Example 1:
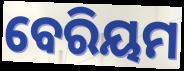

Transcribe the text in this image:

ବେରିୟମ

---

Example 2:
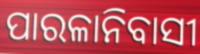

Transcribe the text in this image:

ପାରଳାନିବାସୀ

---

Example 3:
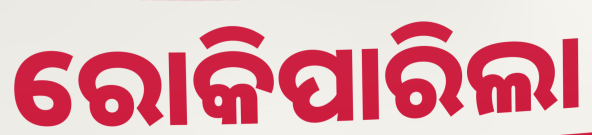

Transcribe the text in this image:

ରୋକିପାରିଲା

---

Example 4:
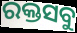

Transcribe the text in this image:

ରକ୍ତସବୁ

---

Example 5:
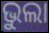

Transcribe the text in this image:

ଭୁଲା